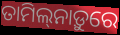
ତାମିଲ୍‌ନାଡ଼ୁରେ